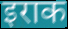
इराक